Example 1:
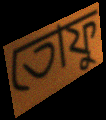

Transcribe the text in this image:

তোফু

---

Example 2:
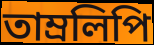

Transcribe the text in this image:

তাম্রলিপি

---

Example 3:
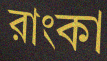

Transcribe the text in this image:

রাংকা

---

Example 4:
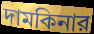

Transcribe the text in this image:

দামকিনার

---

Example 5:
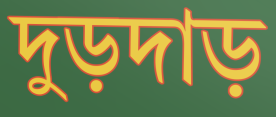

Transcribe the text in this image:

দুড়দাড়